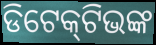
ଡିଟେକ୍‌ଟିଭଙ୍କ